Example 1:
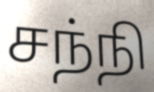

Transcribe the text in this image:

சந்நி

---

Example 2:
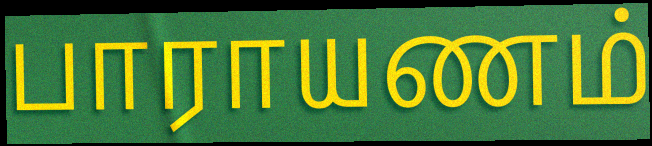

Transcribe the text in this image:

பாராயணம்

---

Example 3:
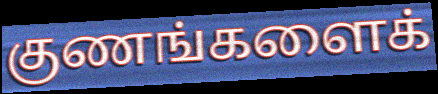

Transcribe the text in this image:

குணங்களைக்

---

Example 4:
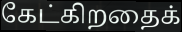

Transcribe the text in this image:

கேட்கிறதைக்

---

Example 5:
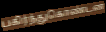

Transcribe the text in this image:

பகிர்ந்துகொண்டன